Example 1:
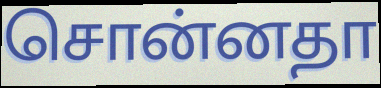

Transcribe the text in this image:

சொன்னதா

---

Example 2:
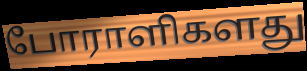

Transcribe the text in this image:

போராளிகளது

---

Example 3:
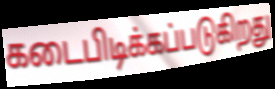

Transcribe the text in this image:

கடைபிடிக்கப்படுகிறது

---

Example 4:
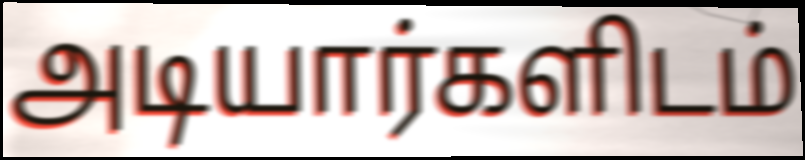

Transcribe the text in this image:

அடியார்களிடம்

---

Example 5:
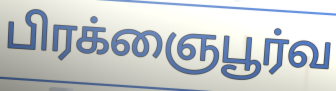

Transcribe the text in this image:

பிரக்ஞைபூர்வ